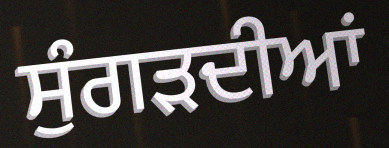
ਸੁੰਗੜਦੀਆਂ